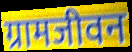
ग्रामजीवन